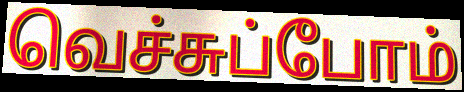
வெச்சுப்போம்